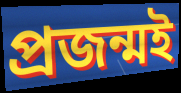
প্রজন্মই